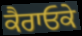
ਕੈਰਾਓਕੇ